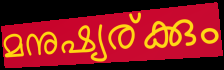
മനുഷ്യര്ക്കും